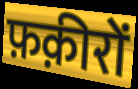
फ़क़ीरों